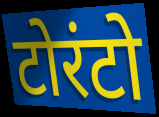
टोरंटो